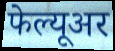
फेल्यूअर